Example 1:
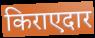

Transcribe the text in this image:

किराएदार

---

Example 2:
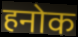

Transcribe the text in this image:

हनोक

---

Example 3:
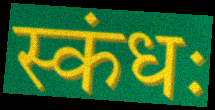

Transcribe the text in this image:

स्कंधः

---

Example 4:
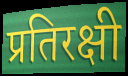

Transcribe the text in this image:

प्रतिरक्षी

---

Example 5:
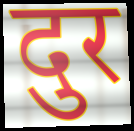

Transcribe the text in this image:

दुर